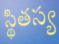
స్థితస్య